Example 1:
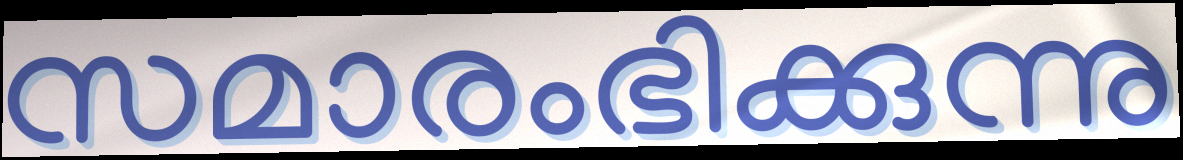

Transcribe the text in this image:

സമാരംഭിക്കുന്നു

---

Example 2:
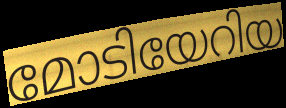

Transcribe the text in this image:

മോടിയേറിയ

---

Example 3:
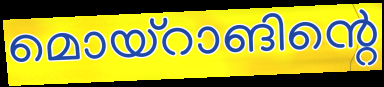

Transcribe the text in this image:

മൊയ്റാങിന്റെ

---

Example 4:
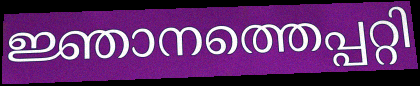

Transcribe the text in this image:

ജ്ഞാനത്തെപ്പറ്റി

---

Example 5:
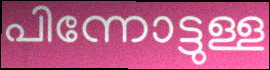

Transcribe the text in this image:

പിന്നോട്ടുള്ള